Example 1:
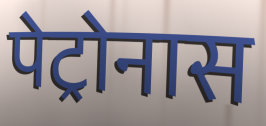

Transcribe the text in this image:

पेट्रोनास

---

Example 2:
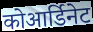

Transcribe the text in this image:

कोआर्डिनेट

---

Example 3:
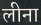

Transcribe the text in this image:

लीना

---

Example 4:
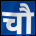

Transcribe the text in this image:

चौ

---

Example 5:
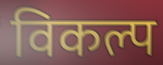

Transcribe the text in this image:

विकल्‍प